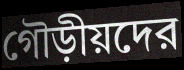
গৌড়ীয়দের